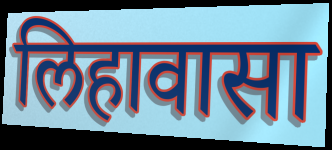
लिहावासा